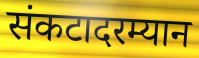
संकटादरम्यान